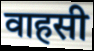
वाहसी